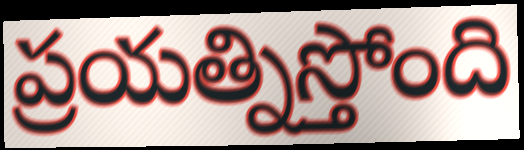
ప్రయత్నిస్తోంది